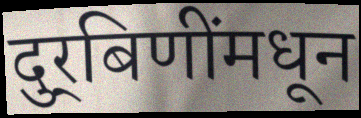
दुर्बिणींमधून